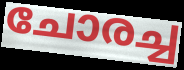
ചോരച്ച